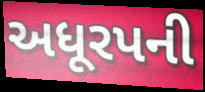
અધૂરપની